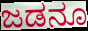
ಜಡನೂ